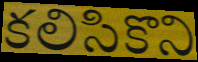
కలిసికొని